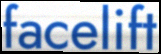
facelift